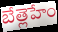
బేత్లెహేం